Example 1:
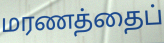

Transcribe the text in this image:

மரணத்தைப்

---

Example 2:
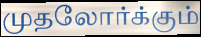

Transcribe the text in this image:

முதலோர்க்கும்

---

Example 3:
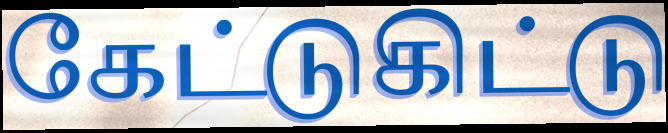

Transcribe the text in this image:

கேட்டுகிட்டு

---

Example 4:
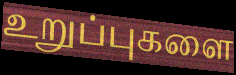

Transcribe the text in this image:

உறுப்புகளை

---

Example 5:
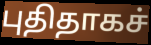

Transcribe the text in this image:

புதிதாகச்